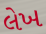
લેખ